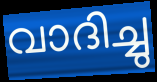
വാദിച്ചു